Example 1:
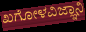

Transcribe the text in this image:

ಖಗೋಳವಿಜ್ಞಾನಿ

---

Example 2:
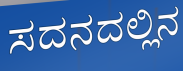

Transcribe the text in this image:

ಸದನದಲ್ಲಿನ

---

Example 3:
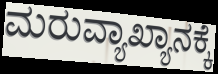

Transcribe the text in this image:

ಮರುವ್ಯಾಖ್ಯಾನಕ್ಕೆ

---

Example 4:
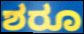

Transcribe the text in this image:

ಶರೂ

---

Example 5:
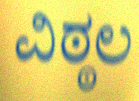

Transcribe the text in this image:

ವಿಠ್ಠಲ